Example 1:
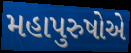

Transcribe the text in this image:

મહાપુરુષોએ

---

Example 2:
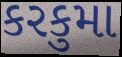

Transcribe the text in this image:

કરકુમા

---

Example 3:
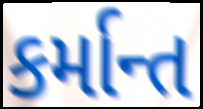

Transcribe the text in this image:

કર્માન્ત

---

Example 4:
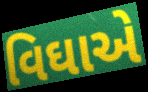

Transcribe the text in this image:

વિઘાએ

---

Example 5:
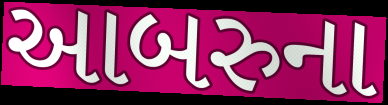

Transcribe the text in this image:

આબરુના